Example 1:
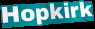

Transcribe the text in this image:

Hopkirk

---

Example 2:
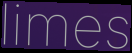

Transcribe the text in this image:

limes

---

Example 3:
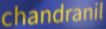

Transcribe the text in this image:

chandranil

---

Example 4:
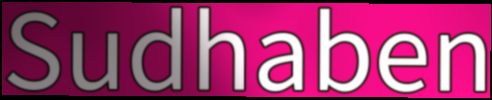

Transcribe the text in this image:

Sudhaben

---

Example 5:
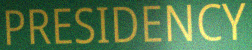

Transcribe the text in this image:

PRESIDENCY